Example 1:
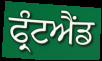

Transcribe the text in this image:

ਫ੍ਰੰਟਐਂਡ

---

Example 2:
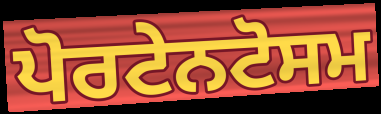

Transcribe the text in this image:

ਪੋਰਟੇਨਟੋਸਮ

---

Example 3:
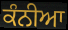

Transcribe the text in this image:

ਕੰਨੀਆ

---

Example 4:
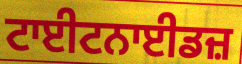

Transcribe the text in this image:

ਟਾਈਟਨਾਈਡਜ਼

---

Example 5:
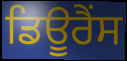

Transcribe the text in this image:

ਡਿਊਰੈਂਸ